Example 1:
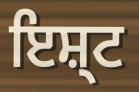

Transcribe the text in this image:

ਇਸ਼੍ਟ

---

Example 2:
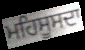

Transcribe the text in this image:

ਮਹਿਸੂਸਦਾ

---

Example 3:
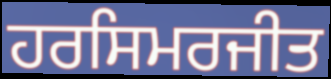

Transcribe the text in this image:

ਹਰਸਿਮਰਜੀਤ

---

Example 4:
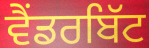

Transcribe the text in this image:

ਵੈਂਡਰਬਿੱਟ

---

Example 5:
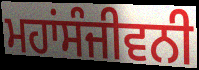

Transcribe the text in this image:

ਮਹਾਂਸੰਜੀਵਨੀ